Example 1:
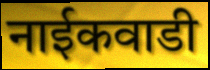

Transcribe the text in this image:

नाईकवाडी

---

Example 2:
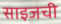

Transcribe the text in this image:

साइजची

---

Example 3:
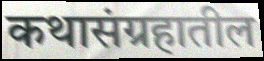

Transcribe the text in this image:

कथासंग्रहातील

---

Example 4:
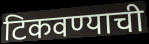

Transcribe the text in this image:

टिकवण्याची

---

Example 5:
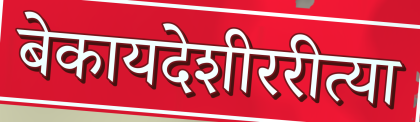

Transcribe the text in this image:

बेकायदेशीररीत्या